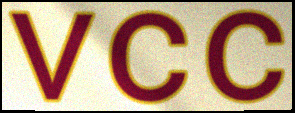
vcc